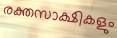
രക്തസാക്ഷികളും